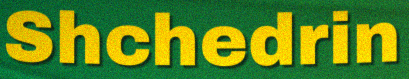
Shchedrin